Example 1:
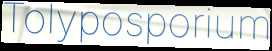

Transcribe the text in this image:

Tolyposporium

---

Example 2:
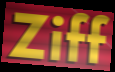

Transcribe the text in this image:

Ziff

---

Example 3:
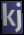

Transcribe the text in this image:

kj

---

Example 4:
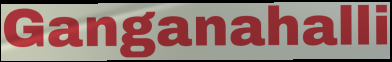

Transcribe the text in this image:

Ganganahalli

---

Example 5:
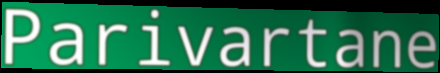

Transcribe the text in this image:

Parivartane